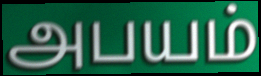
அபயம்